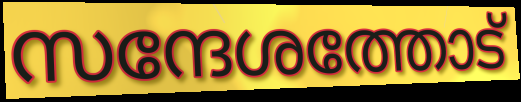
സന്ദേശത്തോട്